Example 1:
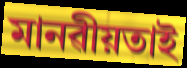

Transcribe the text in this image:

মানৱীয়তাই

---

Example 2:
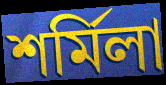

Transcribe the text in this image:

শৰ্মিলা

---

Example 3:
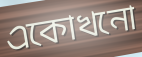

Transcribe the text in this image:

একোখনো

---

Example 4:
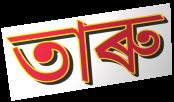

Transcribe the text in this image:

তাৰু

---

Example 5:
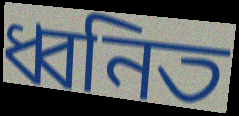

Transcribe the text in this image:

ধ্বনিত